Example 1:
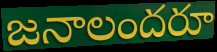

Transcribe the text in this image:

జనాలందరూ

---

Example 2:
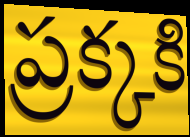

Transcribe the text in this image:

ప్రక్కకి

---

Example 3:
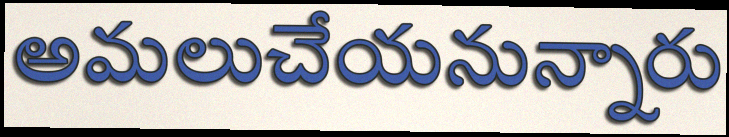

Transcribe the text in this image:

అమలుచేయనున్నారు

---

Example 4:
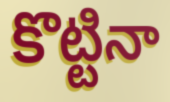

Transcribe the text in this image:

కొట్టినా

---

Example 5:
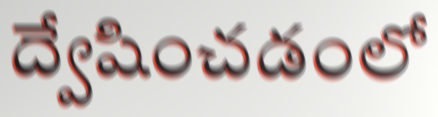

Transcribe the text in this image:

ద్వేషించడంలో